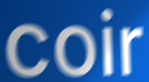
coir